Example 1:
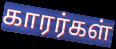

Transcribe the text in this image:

காரர்கள்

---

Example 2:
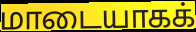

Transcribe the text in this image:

மாடையாகக்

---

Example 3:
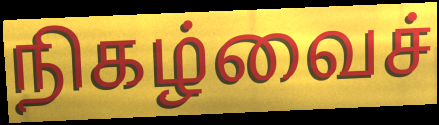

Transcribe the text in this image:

நிகழ்வைச்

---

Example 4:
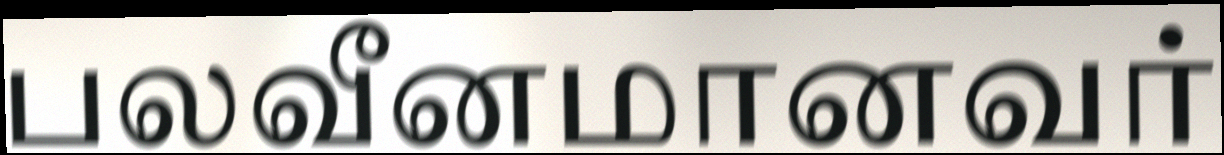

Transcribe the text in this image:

பலவீனமானவர்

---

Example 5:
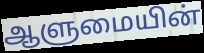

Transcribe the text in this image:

ஆளுமையின்